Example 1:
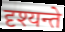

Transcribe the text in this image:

दृश्यन्ते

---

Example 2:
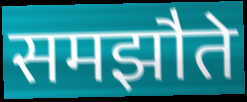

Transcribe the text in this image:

समझौते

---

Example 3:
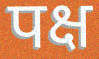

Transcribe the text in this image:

पक्ष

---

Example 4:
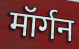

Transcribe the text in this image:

मॉर्गन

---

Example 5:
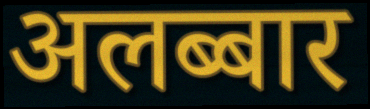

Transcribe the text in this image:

अलब्बार